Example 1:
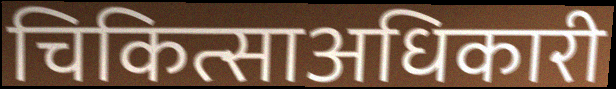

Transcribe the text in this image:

चिकित्साअधिकारी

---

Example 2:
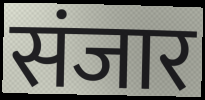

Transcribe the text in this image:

संजार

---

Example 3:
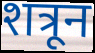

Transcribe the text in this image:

शत्रून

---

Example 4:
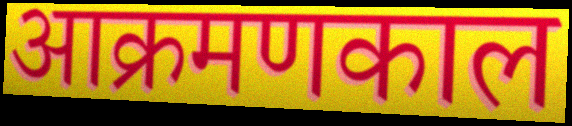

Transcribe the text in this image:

आक्रमणकाल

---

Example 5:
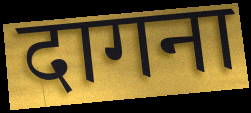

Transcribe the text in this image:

दागना